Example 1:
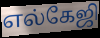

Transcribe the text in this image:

எல்கேஜி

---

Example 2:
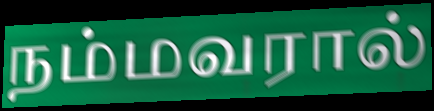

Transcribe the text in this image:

நம்மவரால்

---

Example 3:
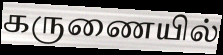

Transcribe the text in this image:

கருணையில்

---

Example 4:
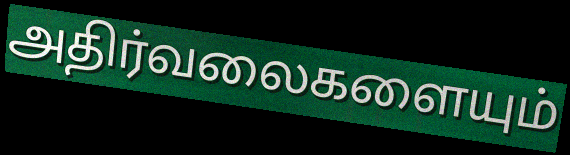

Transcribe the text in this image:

அதிர்வலைகளையும்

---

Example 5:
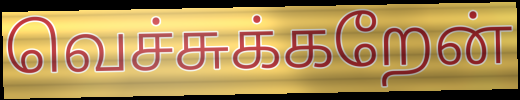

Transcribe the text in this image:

வெச்சுக்கறேன்